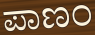
ಪಾಣಂ